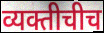
व्यक्तीचीच